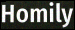
Homily